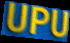
UPU